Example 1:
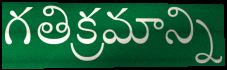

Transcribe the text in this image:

గతిక్రమాన్ని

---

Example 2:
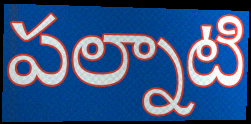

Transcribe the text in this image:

పల్నాటి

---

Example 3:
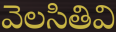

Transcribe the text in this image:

వెలసితివి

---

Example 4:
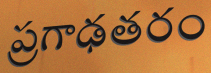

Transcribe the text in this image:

ప్రగాఢతరం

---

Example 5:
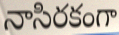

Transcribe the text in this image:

నాసిరకంగా